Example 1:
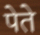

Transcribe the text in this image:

पेते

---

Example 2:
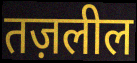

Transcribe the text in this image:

तज़लील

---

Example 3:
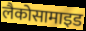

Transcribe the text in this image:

लैकोसामाइड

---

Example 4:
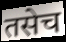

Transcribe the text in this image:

तसेच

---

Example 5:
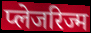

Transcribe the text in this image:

प्लेजरिज्म